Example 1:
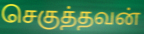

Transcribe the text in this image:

செகுத்தவன்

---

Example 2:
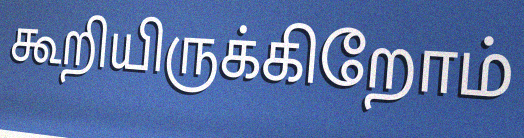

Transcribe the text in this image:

கூறியிருக்கிறோம்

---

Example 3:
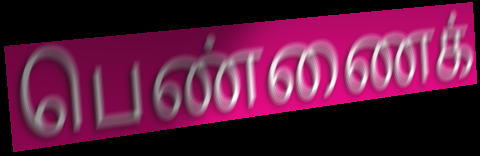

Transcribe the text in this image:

பெண்ணைக்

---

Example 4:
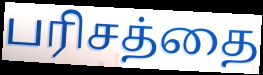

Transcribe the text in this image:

பரிசத்தை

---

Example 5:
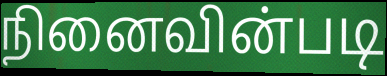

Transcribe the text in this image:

நினைவின்படி